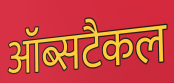
ऑब्सटैकल